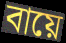
বায়ে